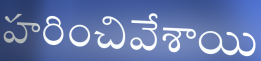
హరించివేశాయి